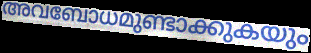
അവബോധമുണ്ടാക്കുകയും